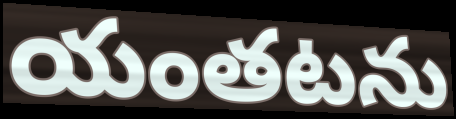
యంతటను